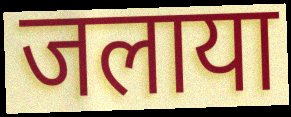
जलाया